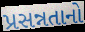
પ્રસન્નતાનો